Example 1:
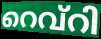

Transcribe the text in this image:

റെവ്റി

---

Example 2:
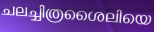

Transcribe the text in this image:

ചലച്ചിത്രശൈലിയെ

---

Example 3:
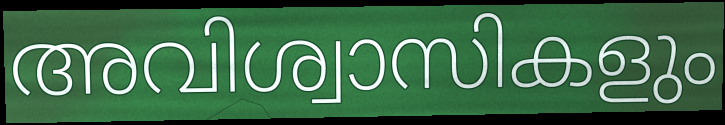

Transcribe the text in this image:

അവിശ്വാസികളും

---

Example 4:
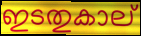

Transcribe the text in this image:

ഇടതുകാല്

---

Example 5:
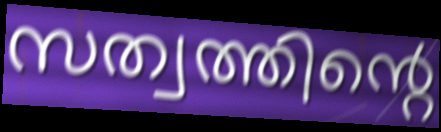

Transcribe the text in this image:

സത്വത്തിന്റെ